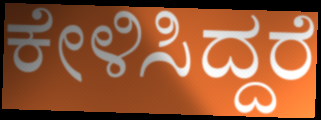
ಕೇಳಿಸಿದ್ದರೆ